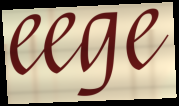
eege